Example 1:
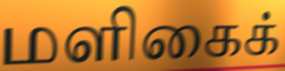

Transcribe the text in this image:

மளிகைக்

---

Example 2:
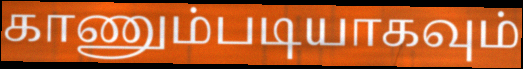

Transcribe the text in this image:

காணும்படியாகவும்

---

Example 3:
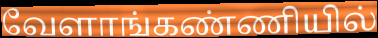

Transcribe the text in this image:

வேளாங்கண்ணியில்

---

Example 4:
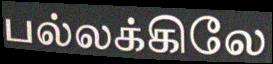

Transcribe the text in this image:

பல்லக்கிலே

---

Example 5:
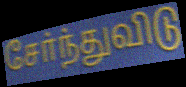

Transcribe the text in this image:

சேர்ந்துவிடு